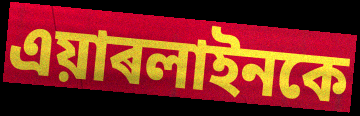
এয়াৰলাইনকে